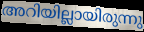
അറിയില്ലായിരുന്നു